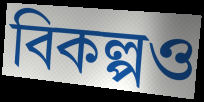
বিকল্পও